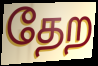
தேற